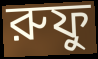
রুফু